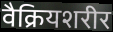
वैक्रियशरीर